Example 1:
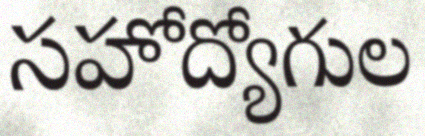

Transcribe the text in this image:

సహోద్యోగుల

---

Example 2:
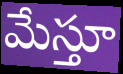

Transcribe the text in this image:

మేస్తూ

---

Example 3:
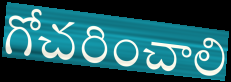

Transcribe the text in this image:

గోచరించాలి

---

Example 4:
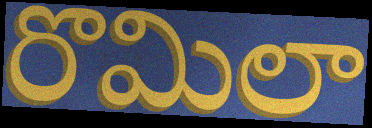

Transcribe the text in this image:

రొమిలా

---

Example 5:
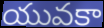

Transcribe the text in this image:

యువకా